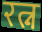
रत्न